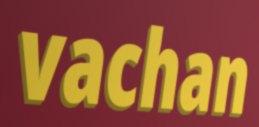
vachan